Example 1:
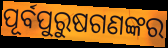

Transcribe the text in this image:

ପୂର୍ବପୁରୁଷଗଣଙ୍କର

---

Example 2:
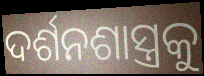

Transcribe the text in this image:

ଦର୍ଶନଶାସ୍ତ୍ରକୁ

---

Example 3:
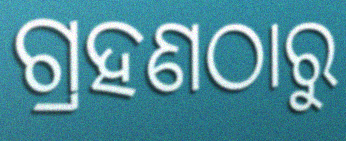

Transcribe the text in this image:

ଗ୍ରହଣଠାରୁ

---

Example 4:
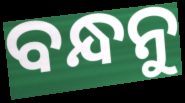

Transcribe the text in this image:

ବନ୍ଧନୁ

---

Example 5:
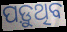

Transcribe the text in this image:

ପଡ଼ୁଥିବ